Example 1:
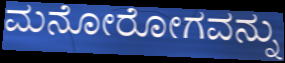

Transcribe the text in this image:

ಮನೋರೋಗವನ್ನು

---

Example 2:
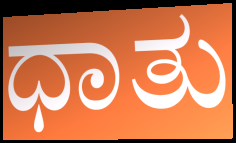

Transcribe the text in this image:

ಧಾತು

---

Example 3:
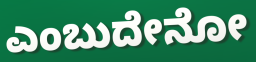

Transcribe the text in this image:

ಎಂಬುದೇನೋ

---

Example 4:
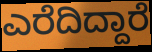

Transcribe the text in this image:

ಎರೆದಿದ್ದಾರೆ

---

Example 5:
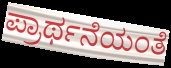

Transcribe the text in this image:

ಪ್ರಾರ್ಥನೆಯಂತೆ